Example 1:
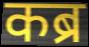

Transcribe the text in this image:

कब्र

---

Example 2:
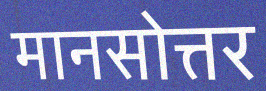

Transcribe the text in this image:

मानसोत्तर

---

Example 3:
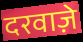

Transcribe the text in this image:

दरवाज़े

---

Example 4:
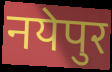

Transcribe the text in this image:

नयेपुर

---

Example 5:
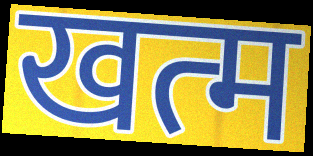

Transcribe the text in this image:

खत्‍म